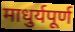
माधुर्यपूर्ण